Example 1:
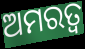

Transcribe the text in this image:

ଅମରତ୍ବ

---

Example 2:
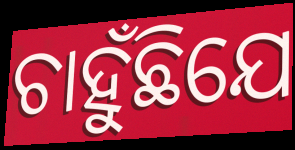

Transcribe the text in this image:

ଚାହୁଁଛିଯେ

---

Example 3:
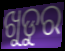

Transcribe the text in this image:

ଖୁଡୁର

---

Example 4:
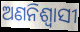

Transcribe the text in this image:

ଅଣନିଶ୍ୱାସୀ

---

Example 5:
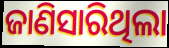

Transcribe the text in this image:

ଜାଣିସାରିଥିଲା